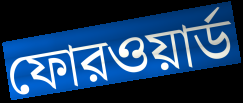
ফোরওয়ার্ড